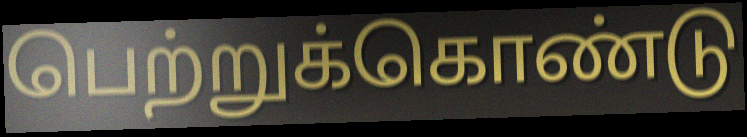
பெற்றுக்கொண்டு